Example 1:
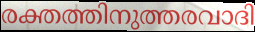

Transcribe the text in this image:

രക്തത്തിനുത്തരവാദി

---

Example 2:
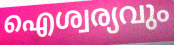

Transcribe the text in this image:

ഐശ്വര്യവും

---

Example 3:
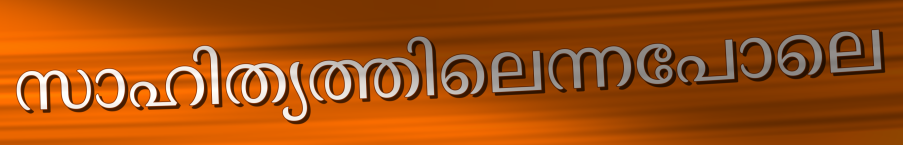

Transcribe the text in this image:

സാഹിത്യത്തിലെന്നപോലെ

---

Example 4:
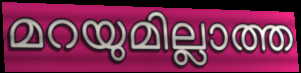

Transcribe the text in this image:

മറയുമില്ലാത്ത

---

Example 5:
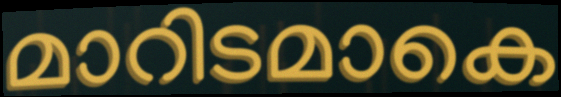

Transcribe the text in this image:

മാറിടമാകെ